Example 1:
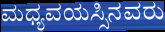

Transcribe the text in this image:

ಮಧ್ಯವಯಸ್ಸಿನವರು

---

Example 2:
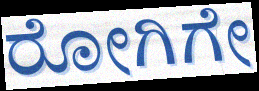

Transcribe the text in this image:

ರೋಗಿಗೇ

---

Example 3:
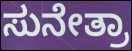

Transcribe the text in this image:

ಸುನೇತ್ರಾ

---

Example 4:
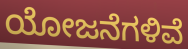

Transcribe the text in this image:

ಯೋಜನೆಗಳಿವೆ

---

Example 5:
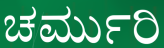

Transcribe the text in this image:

ಚರ್ಮುರಿ